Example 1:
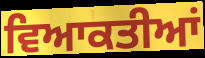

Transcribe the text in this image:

ਵਿਆਕਤੀਆਂ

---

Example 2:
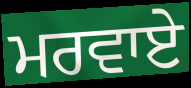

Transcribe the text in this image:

ਮਰਵਾਏ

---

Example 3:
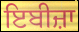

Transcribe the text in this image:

ਇਬੀਜ਼ਾ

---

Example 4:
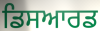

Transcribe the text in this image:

ਡਿਸਆਰਡ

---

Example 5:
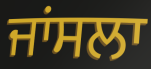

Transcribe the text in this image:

ਜਾਂਸਲਾ